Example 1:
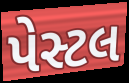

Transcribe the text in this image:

પેસ્ટલ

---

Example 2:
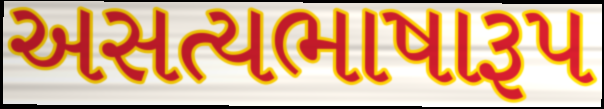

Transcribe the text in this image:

અસત્યભાષારૂપ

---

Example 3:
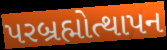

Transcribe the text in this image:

પરબ્રહ્મોત્થાપન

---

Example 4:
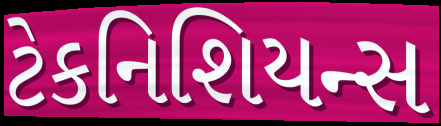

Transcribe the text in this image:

ટેકનિશિયન્સ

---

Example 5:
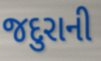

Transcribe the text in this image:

જદુરાની